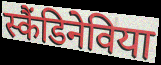
स्कैंडिनेविया